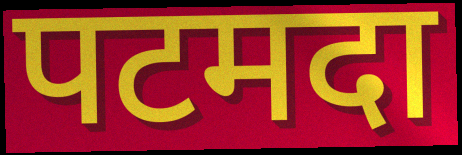
पटमदा